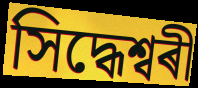
সিদ্ধেশ্বৰী